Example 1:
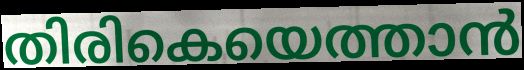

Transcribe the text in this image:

തിരികെയെത്താൻ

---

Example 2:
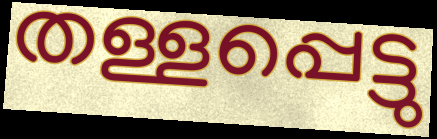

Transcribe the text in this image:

തള്ളപ്പെട്ടു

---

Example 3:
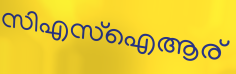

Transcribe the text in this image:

സിഎസ്ഐആര്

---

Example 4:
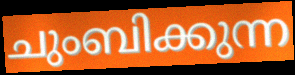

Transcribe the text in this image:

ചുംബിക്കുന്ന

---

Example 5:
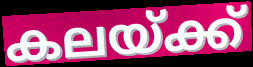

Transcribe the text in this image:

കലയ്ക്ക്